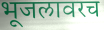
भूजलावरच